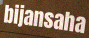
bijansaha